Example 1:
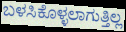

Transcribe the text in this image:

ಬಳಸಿಕೊಳ್ಳಲಾಗುತ್ತಿಲ್ಲ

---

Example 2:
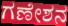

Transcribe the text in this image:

ಗಣೇಶನ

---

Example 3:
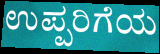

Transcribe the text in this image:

ಉಪ್ಪರಿಗೆಯ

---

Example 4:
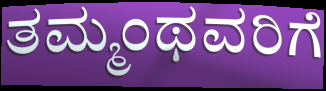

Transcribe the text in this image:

ತಮ್ಮಂಥವರಿಗೆ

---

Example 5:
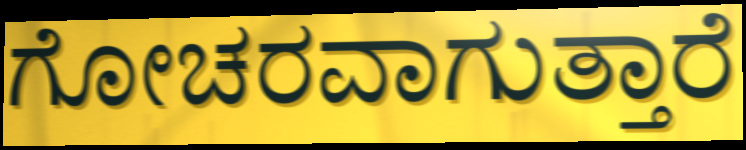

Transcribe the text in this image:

ಗೋಚರವಾಗುತ್ತಾರೆ